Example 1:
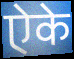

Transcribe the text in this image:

ऐके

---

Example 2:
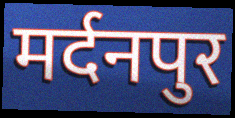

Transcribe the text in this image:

मर्दनपुर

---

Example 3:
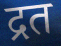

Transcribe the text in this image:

द्रत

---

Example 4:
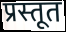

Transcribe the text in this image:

प्रस्तूत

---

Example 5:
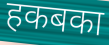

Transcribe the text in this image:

हकबका